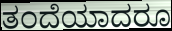
ತಂದೆಯಾದರೂ